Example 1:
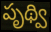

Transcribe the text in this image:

పృథ్వి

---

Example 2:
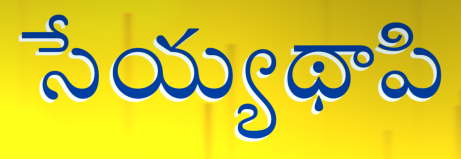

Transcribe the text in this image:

సేయ్యథాపి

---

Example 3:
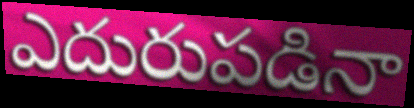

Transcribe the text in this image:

ఎదురుపడినా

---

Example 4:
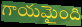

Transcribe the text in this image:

గాయమైంది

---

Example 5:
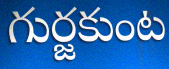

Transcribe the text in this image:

గుర్జకుంట